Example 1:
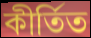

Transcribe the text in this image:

কীর্তিত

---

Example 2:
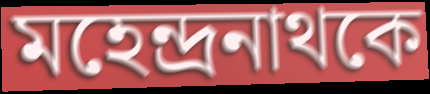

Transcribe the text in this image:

মহেন্দ্রনাথকে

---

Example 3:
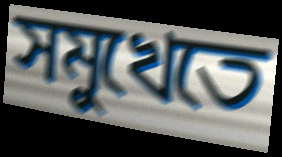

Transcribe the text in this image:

সমুখেতে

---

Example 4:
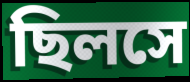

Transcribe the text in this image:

ছিলসে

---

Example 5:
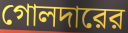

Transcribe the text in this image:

গোলদারের